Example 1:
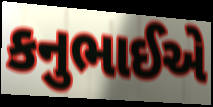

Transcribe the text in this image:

કનુભાઈએ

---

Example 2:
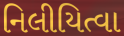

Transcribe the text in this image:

નિલીયિત્વા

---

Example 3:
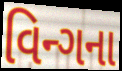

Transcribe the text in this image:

વિન્ગના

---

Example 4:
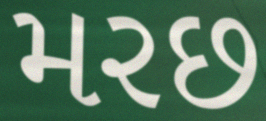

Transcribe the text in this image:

મરછ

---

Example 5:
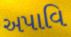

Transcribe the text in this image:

અપાવિ